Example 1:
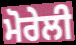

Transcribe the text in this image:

ਮੋਰੇਲੀ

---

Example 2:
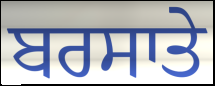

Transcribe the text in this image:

ਬਰਸਾਤੇ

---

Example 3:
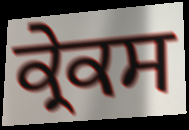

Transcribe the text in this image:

ਕ੍ਰੇਕਸ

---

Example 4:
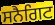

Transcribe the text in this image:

ਸਨੈਗਿਟ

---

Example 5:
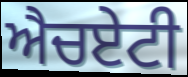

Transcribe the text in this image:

ਐਚਏਟੀ